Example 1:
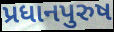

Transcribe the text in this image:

પ્રધાનપુરુષ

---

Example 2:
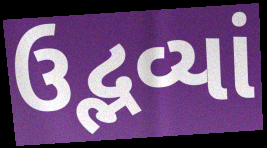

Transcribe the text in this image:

ઉદ્ભવ્યાં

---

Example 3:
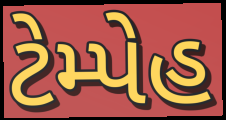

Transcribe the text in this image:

ટેમ્પેહ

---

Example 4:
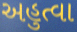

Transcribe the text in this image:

અહુત્વા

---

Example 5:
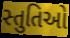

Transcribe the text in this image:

સ્તુતિઓ